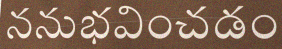
ననుభవించడం